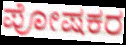
ಪೋಷಕರ